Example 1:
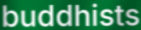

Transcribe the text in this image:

buddhists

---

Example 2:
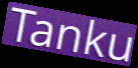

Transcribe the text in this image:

Tanku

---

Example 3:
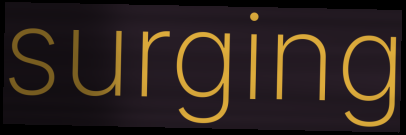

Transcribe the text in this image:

surging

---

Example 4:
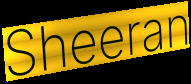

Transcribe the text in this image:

Sheeran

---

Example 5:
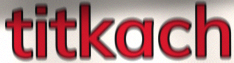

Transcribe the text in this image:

titkach